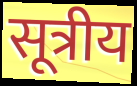
सूत्रीय